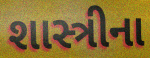
શાસ્ત્રીના